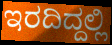
ಇರದಿದ್ದಲ್ಲಿ